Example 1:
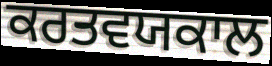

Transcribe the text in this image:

ਕਰਤਵਯਕਾਲ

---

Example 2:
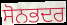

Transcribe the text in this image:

ਸੋਨਭਦਰ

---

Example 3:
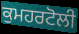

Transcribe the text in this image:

ਕੁਮਹਰਟੋਲੀ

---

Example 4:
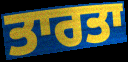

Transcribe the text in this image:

ਤਾਰਤਾ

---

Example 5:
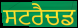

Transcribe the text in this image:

ਸਟਰੈਚਡ